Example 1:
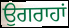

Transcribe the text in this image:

ਉਗਰਾਹਾਂ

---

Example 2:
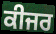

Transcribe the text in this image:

ਕੀਜਰ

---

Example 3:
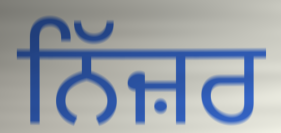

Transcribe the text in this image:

ਨਿੱਜ਼ਰ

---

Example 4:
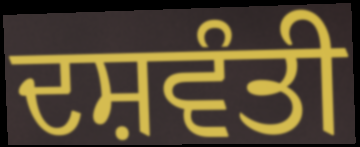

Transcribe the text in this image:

ਦਸ਼ਵੰਤੀ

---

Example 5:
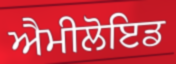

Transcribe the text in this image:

ਐਮੀਲੋਇਡ